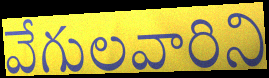
వేగులవారిని